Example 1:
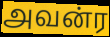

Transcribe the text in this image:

அவன்ர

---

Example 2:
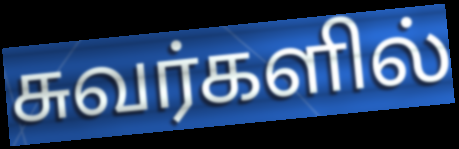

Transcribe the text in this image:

சுவர்களில்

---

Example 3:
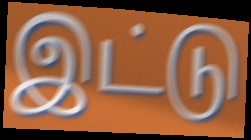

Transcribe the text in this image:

இட்டு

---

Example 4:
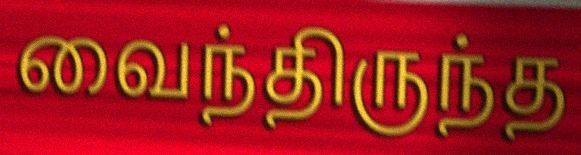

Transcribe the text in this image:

வைந்திருந்த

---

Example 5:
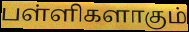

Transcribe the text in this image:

பள்ளிகளாகும்